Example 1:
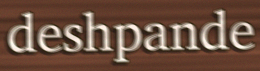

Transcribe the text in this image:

deshpande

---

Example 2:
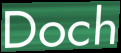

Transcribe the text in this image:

Doch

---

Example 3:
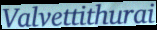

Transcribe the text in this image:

Valvettithurai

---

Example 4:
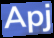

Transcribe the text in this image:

Apj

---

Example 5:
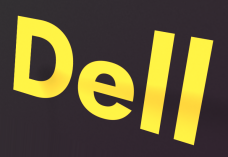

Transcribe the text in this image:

Dell